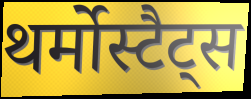
थर्मोस्टैट्स